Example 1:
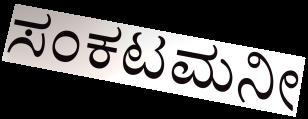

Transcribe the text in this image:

ಸಂಕಟಮನೀ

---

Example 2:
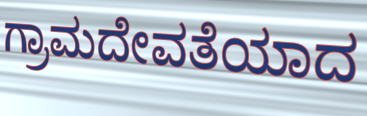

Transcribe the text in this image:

ಗ್ರಾಮದೇವತೆಯಾದ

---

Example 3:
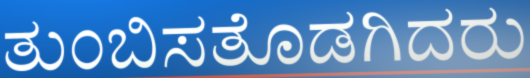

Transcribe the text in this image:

ತುಂಬಿಸತೊಡಗಿದರು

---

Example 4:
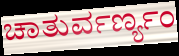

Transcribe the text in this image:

ಚಾತುರ್ವರ್ಣ್ಯಂ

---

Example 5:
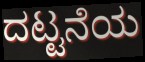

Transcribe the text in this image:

ದಟ್ಟನೆಯ